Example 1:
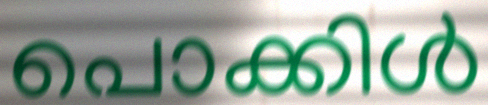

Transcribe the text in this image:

പൊക്കിൾ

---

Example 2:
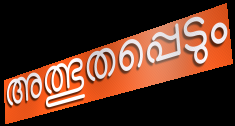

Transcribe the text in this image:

അത്ഭുതപ്പെടും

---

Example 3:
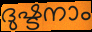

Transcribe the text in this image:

ദുഷ്ടനാം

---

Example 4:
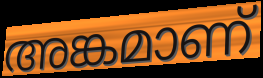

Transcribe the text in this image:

അങ്കമാണ്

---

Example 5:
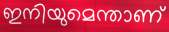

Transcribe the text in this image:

ഇനിയുമെന്താണ്